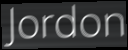
Jordon